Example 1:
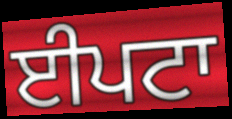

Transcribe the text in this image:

ਈਪਟਾ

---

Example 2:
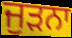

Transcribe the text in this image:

ਜੁੜਨਾ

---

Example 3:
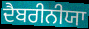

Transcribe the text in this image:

ਦੈਬਰੀਨੀਯਾ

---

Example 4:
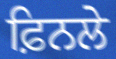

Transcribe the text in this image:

ਫ਼ਿਨਲੇ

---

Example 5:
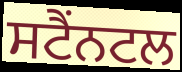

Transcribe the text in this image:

ਸਟੈਂਨਟਲ